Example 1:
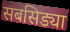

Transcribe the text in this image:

सबसिड्या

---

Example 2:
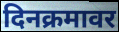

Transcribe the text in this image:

दिनक्रमावर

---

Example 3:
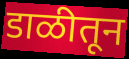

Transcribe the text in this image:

डाळीतून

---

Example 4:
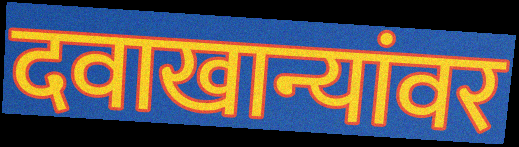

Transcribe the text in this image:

दवाखान्यांवर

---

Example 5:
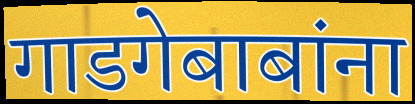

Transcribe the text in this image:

गाडगेबाबांना